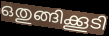
ഒതുങ്ങിക്കൂടി